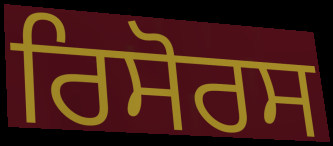
ਰਿਸੋਰਸ